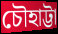
চৌহাট্টা